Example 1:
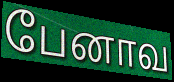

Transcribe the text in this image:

பேனாவ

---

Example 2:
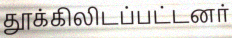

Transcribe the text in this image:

தூக்கிலிடப்பட்டனர்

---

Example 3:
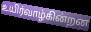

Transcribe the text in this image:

உயிர்வாழ்கின்றன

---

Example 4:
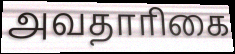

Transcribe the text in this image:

அவதாரிகை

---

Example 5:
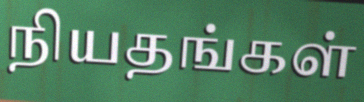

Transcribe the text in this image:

நியதங்கள்